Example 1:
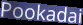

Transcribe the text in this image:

Pookadai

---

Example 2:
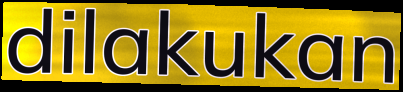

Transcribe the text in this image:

dilakukan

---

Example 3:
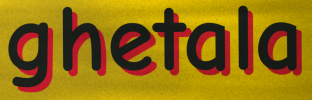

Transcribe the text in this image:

ghetala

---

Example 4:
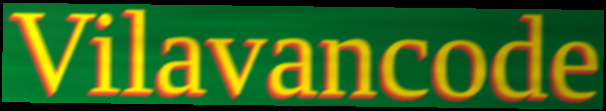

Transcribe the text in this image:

Vilavancode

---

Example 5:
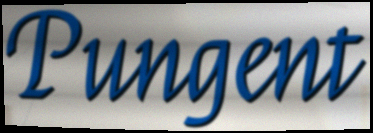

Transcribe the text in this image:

Pungent